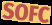
SOFC